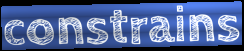
constrains